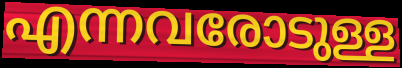
എന്നവരോടുള്ള